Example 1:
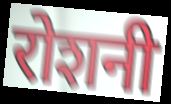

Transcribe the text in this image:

रोशनी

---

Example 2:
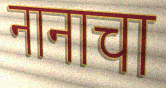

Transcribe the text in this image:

नानाचा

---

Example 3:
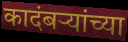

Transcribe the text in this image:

कादंबऱ्यांच्या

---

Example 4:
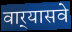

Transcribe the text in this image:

वार्यासवे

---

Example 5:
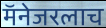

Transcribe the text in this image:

मॅनेजरलाच